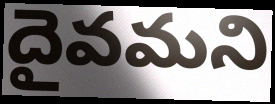
దైవమని